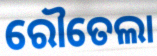
ରୌତେଲା